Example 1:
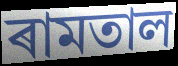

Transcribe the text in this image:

ৰামতাল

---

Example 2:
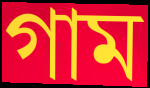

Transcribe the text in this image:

গাম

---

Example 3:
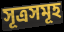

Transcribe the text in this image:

সূত্ৰসমূহ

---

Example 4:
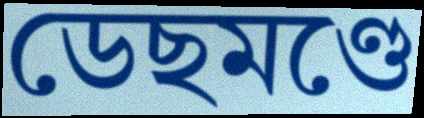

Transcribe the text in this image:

ডেছমণ্ডে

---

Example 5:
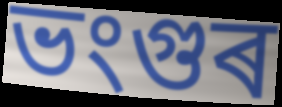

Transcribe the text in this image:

ভংগুৰ